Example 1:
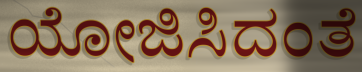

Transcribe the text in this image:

ಯೋಜಿಸಿದಂತೆ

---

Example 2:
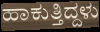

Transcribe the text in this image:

ಹಾಕುತ್ತಿದ್ದಳು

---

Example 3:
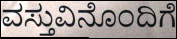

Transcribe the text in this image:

ವಸ್ತುವಿನೊಂದಿಗೆ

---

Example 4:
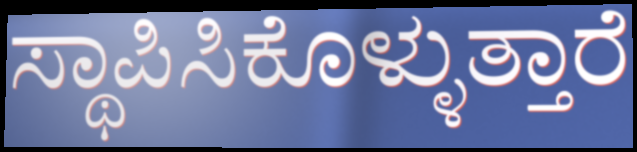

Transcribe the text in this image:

ಸ್ಥಾಪಿಸಿಕೊಳ್ಳುತ್ತಾರೆ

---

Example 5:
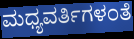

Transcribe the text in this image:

ಮಧ್ಯವರ್ತಿಗಳಂತೆ